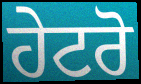
ਹੇਟਰੋ